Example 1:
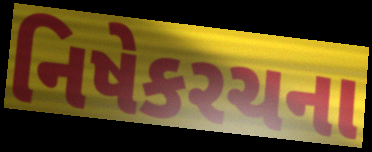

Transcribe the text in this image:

નિષેકરચના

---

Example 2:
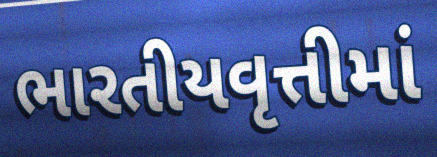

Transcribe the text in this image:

ભારતીયવૃત્તીમાં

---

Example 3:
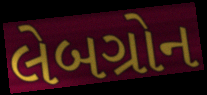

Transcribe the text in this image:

લેબગ્રોન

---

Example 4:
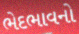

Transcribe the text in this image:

ભેદભાવનો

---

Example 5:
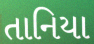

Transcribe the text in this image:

તાનિયા